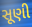
સૂણી